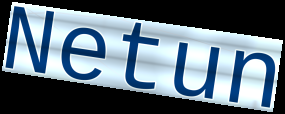
Netun